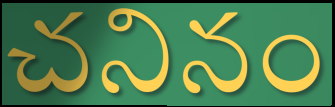
చనినం